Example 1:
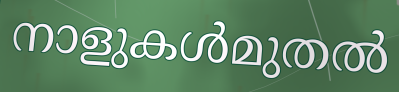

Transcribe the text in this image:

നാളുകൾമുതൽ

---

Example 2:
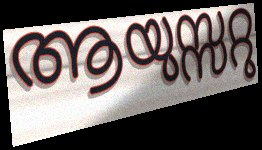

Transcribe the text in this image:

ആയുസ്സറ്റു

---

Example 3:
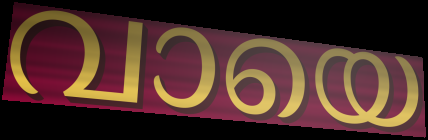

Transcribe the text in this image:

വായെ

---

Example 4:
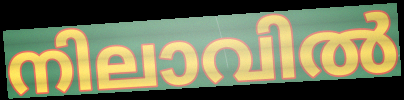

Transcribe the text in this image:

നിലാവിൽ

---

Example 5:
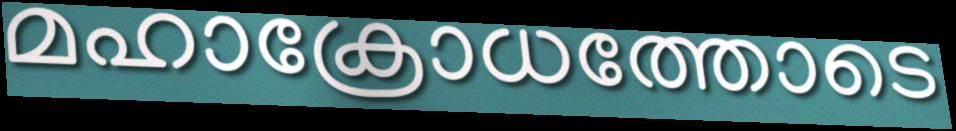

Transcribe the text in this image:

മഹാക്രോധത്തോടെ